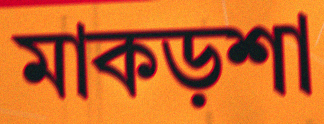
মাকড়শা